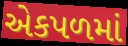
એકપળમાં